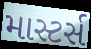
માસ્ટર્સ